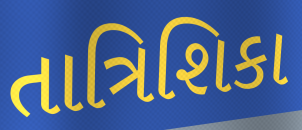
તાત્રિશિકા